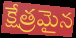
క్షేత్రమైన